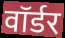
वॉर्डर